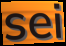
sei